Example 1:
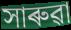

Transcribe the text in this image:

সাৰুৱা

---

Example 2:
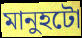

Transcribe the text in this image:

মানুহটো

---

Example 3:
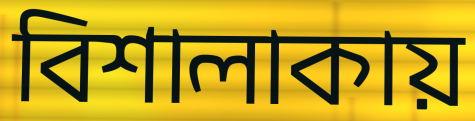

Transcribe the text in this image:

বিশালাকায়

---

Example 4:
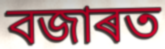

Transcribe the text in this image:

বজাৰত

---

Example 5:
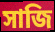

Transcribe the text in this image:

সাজি